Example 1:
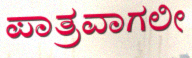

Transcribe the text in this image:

ಪಾತ್ರವಾಗಲೀ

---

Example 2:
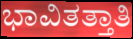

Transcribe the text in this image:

ಭಾವಿತತ್ತಾತಿ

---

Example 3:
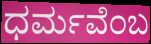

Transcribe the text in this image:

ಧರ್ಮವೆಂಬ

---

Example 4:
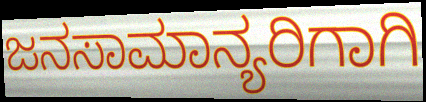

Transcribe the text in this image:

ಜನಸಾಮಾನ್ಯರಿಗಾಗಿ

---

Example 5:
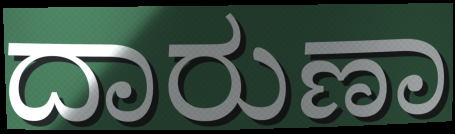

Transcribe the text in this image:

ದಾರುಣಾ